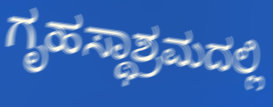
ಗೃಹಸ್ಥಾಶ್ರಮದಲ್ಲಿ